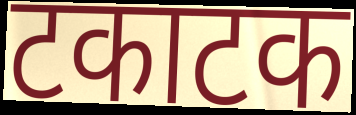
टकाटक